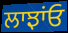
ਲਾਝਾਂਓ